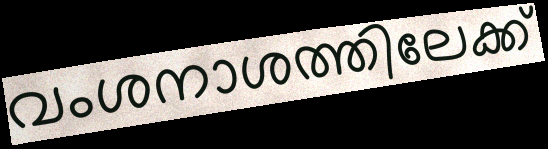
വംശനാശത്തിലേക്ക്